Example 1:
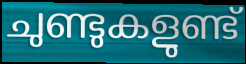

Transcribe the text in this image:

ചുണ്ടുകളുണ്ട്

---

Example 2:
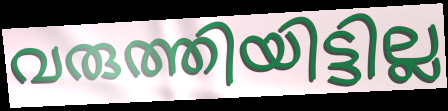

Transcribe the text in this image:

വരുത്തിയിട്ടില്ല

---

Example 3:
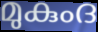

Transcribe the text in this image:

മുകുംദ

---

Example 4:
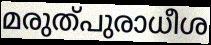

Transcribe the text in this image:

മരുത്പുരാധീശ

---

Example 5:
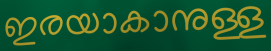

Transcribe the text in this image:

ഇരയാകാനുള്ള